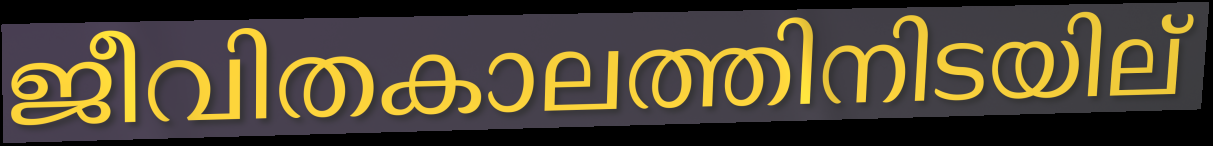
ജീവിതകാലത്തിനിടയില്